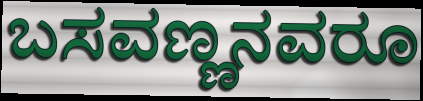
ಬಸವಣ್ಣನವರೂ